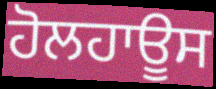
ਹੋਲਹਾਊਸ